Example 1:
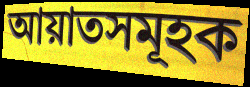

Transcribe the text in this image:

আয়াতসমূহক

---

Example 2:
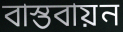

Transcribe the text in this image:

বাস্তবায়ন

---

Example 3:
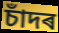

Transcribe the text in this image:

চাঁদৰ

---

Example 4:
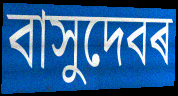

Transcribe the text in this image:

বাসুদেবৰ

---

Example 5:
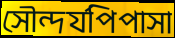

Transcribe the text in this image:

সৌন্দৰ্যপিপাসা